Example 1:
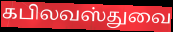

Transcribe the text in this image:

கபிலவஸ்துவை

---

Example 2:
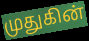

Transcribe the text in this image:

முதுகின்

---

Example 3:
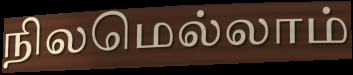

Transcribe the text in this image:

நிலமெல்லாம்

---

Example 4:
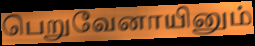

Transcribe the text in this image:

பெறுவேனாயினும்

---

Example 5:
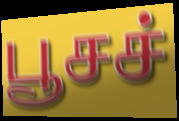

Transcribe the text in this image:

பூசச்